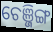
ଚେଞ୍ଜିଙ୍ଗ